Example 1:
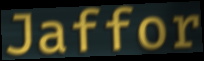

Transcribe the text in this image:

Jaffor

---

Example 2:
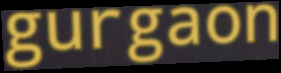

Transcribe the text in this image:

gurgaon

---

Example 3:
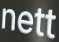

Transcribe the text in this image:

nett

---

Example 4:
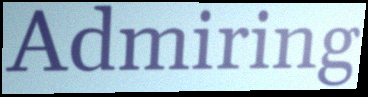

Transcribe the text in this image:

Admiring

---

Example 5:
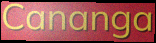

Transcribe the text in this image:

Cananga